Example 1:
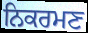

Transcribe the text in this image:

ਨਿਕਰਮਣ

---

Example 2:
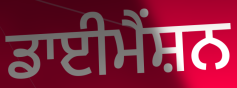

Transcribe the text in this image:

ਡਾਈਮੈਂਸ਼ਨ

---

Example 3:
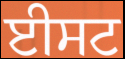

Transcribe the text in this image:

ਈਸਟ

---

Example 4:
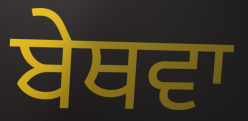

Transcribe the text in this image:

ਬੇਥਵਾ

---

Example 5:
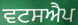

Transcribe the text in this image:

ਵਟਸਐਪ